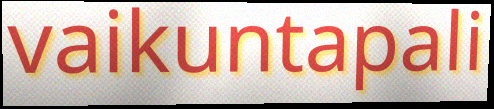
vaikuntapali